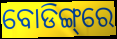
ବୋଡିଙ୍ଗ୍‌ରେ